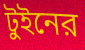
টুইনের